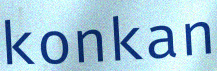
konkan